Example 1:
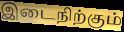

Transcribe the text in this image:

இடைநிற்கும்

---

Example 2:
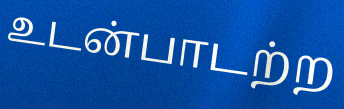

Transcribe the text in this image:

உடன்பாடற்ற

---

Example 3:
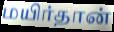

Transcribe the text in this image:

மயிர்தான்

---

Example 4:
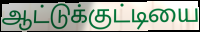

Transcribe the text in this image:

ஆட்டுக்குட்டியை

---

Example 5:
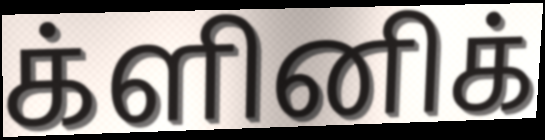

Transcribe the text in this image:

க்ளினிக்